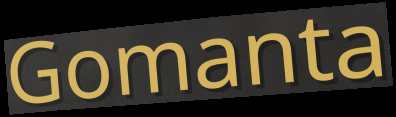
Gomanta